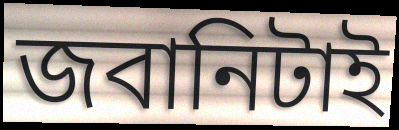
জবানিটাই